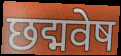
छद्मवेष